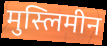
मुस्लिमीन